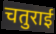
चतुराई